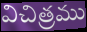
విచిత్రము